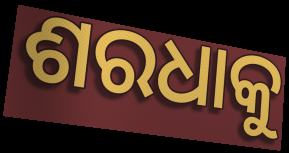
ଶରଧାକୁ